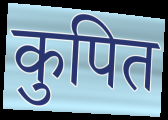
कुपित